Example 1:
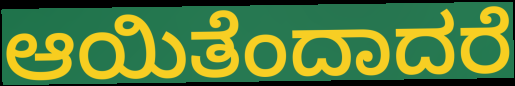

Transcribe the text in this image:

ಆಯಿತೆಂದಾದರೆ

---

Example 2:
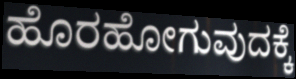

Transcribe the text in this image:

ಹೊರಹೋಗುವುದಕ್ಕೆ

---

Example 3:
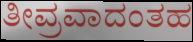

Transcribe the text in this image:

ತೀವ್ರವಾದಂತಹ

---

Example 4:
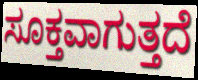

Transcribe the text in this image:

ಸೂಕ್ತವಾಗುತ್ತದೆ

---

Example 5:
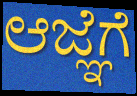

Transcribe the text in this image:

ಆಜ್ಞೆಗೆ